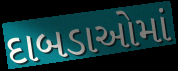
દાબડાઓમાં